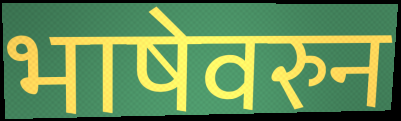
भाषेवरुन